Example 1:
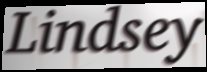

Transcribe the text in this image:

Lindsey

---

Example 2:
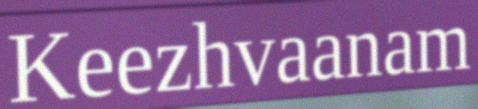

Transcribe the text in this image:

Keezhvaanam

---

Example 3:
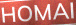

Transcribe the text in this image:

HOMAI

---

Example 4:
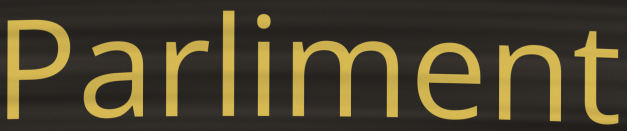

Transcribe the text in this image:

Parliment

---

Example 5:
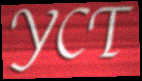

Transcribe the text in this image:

YCT